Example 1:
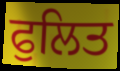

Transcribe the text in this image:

ਫੁਲਿਤ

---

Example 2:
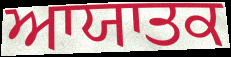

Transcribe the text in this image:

ਆਯਾਤਕ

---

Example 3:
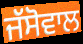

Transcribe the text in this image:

ਜੱਸੋਵਾਲ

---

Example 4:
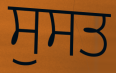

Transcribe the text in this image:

ਸੁਸਤ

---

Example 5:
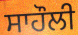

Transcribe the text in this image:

ਸਾਹੌਲੀ